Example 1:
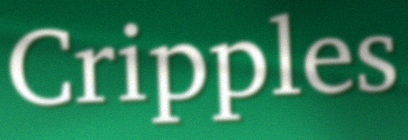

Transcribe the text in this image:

Cripples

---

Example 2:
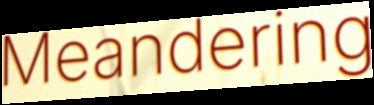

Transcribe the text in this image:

Meandering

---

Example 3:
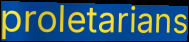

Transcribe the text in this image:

proletarians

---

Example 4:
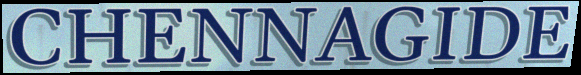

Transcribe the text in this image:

CHENNAGIDE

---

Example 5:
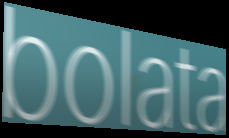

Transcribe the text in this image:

bolata